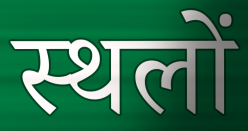
स्थलों